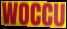
WOCCU